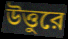
উত্তুরে